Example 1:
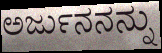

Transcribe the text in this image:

ಅರ್ಜುನನನ್ನು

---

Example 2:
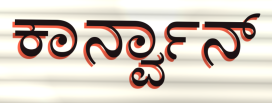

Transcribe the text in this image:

ಕಾರ್ನ್ವಾನ್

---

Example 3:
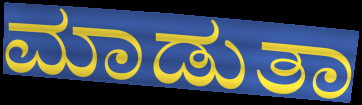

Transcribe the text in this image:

ಮಾಡುತಾ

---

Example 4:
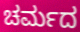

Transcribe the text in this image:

ಚರ್ಮದ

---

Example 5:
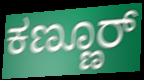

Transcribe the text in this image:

ಕಣ್ಣೂರ್